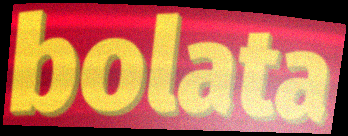
bolata